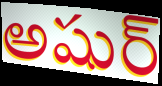
అషుర్